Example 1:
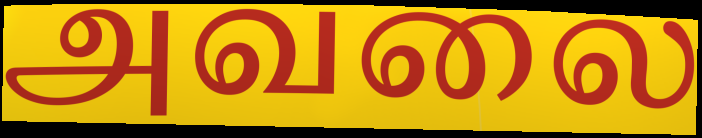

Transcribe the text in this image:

அவலை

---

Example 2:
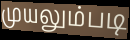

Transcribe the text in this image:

முயலும்படி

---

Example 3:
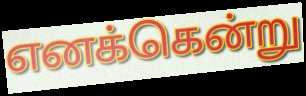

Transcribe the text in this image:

எனக்கென்று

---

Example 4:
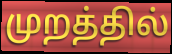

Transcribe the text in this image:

முறத்தில்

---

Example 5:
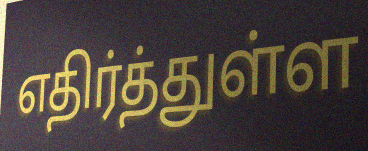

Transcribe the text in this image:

எதிர்த்துள்ள